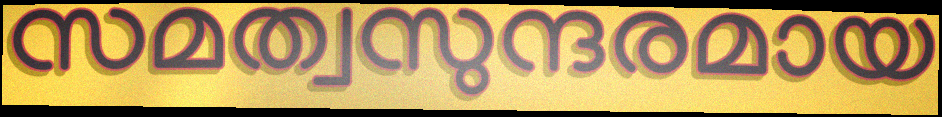
സമത്വസുന്ദരമായ